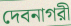
দেবনাগরী